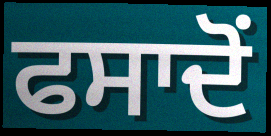
ਫਸਾਦੋਂ